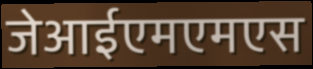
जेआईएमएमएस